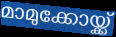
മാമുക്കോയ്ക്ക്